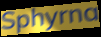
Sphyrna